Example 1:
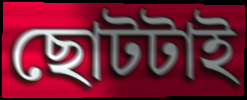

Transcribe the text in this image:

ছোটটাই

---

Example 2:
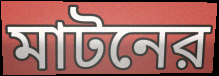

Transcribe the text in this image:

মাটনের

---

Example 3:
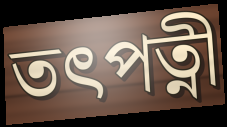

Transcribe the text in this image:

তৎপত্নী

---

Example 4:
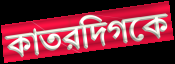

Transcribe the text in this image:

কাতরদিগকে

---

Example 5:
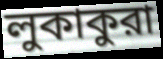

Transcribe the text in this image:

লুকাকুরা